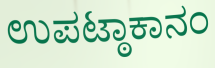
ಉಪಟ್ಠಾಕಾನಂ